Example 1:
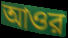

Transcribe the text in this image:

আওর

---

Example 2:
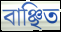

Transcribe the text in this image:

বাঞ্ছিত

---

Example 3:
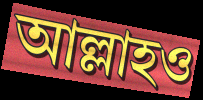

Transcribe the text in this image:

আল্লাহও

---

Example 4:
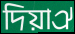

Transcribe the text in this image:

দিয়াঐ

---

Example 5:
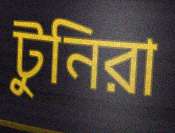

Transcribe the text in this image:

টুনিরা